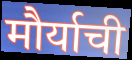
मौर्याची